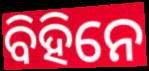
ବିହିନେ